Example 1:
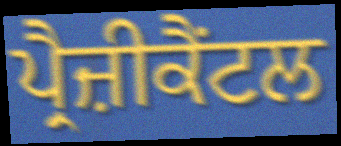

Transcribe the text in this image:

ਪ੍ਰੈਜ਼ੀਕੈਂਟਲ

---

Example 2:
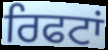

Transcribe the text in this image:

ਰਿਫਟਾਂ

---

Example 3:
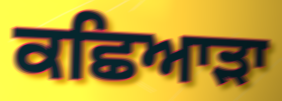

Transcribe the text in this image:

ਕਛਿਆੜਾ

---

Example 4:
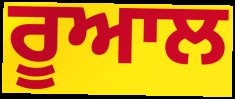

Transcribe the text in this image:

ਰੂਆਲ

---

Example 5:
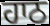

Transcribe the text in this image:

ਹਾਠ